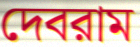
দেবরাম